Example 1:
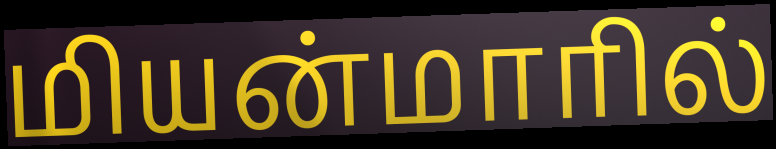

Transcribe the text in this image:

மியன்மாரில்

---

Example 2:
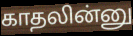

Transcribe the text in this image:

காதலின்னு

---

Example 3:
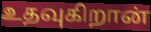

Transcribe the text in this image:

உதவுகிறான்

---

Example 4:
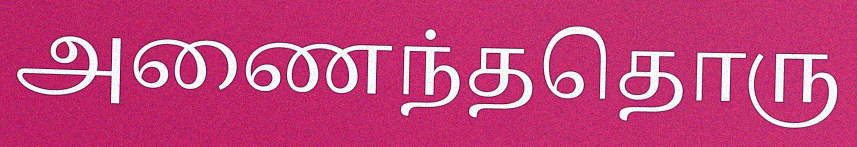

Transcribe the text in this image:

அணைந்ததொரு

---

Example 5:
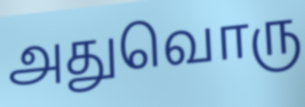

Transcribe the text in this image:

அதுவொரு